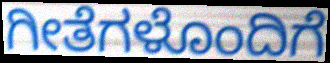
ಗೀತೆಗಳೊಂದಿಗೆ